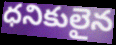
ధనికులైన